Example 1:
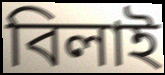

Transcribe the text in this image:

বিলাই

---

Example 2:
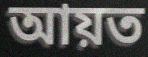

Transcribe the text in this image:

আয়ত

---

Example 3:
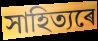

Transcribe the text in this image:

সাহিত্য়ৰে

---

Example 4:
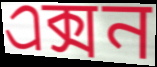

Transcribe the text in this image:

এক্সন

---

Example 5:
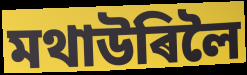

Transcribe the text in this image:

মথাউৰিলৈ